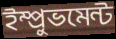
ইম্প্রুভমেন্ট